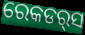
ରେକଡର୍‌ସ